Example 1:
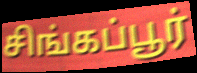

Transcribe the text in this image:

சிங்கப்பூர்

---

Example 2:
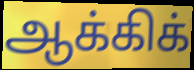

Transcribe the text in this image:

ஆக்கிக்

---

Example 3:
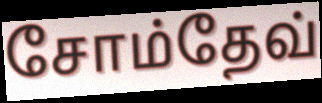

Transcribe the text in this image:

சோம்தேவ்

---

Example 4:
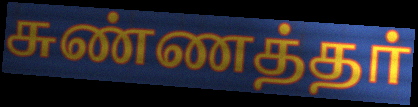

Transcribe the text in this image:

சுண்ணத்தர்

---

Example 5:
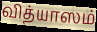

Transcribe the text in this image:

வித்யாஸம்